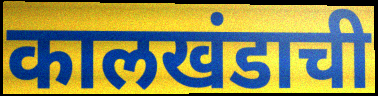
कालखंडाची